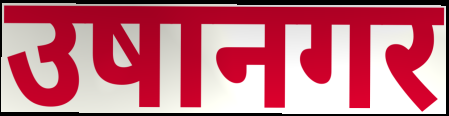
उषानगर